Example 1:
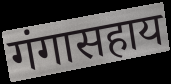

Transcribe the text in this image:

गंगासहाय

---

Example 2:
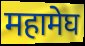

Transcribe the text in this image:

महामेघ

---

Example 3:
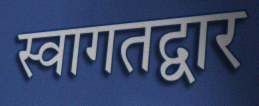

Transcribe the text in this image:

स्वागतद्वार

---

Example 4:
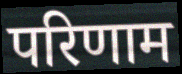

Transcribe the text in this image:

परिणाम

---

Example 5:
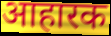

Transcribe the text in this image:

आहारक